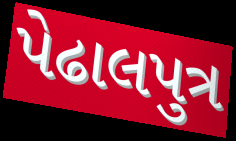
પેઢાલપુત્ર